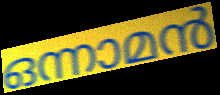
ഒന്നാമൻ